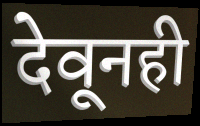
देवूनही